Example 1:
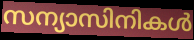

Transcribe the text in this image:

സന്യാസിനികൾ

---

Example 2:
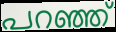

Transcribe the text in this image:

പറഞ്ഞ്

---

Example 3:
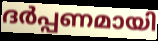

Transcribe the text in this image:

ദർപ്പണമായി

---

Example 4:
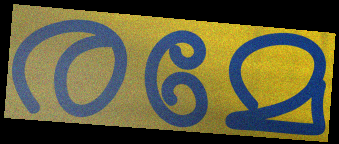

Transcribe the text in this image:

രമേ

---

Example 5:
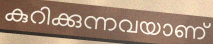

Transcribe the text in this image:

കുറിക്കുന്നവയാണ്